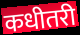
कधीतरी